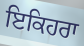
ਇਕਿਹਰਾ